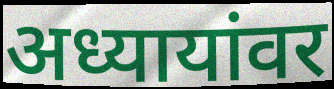
अध्यायांवर